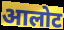
आलोट